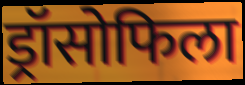
ड्रॉसोफिला